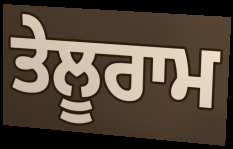
ਤੇਲੂਰਾਮ